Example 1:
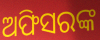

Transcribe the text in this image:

ଅଫିସରଙ୍କ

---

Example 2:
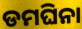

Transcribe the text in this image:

ଡମଘିନା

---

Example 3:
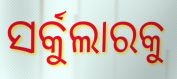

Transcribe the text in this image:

ସର୍କୁଲାରକୁ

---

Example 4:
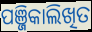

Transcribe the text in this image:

ପଞ୍ଜିକାଲିଖିତ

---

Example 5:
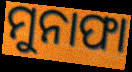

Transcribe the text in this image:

ମୁନାଫା